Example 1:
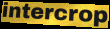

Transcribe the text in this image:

intercrop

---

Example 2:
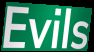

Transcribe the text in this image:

Evils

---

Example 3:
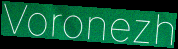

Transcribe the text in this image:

Voronezh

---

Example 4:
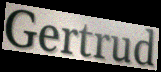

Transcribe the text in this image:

Gertrud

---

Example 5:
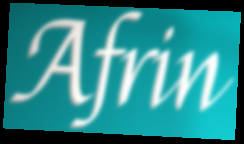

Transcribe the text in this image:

Afrin